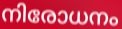
നിരോധനം